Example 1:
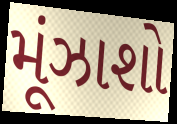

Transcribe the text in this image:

મૂંઝાશો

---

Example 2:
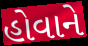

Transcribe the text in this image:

હોવાને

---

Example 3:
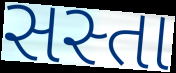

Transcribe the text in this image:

સસ્તા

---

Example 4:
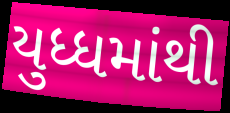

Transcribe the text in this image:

યુધ્ધમાંથી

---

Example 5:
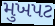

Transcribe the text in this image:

મુખપટ